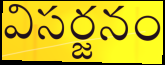
విసర్జనం